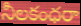
నీలకంధరా